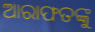
ଆରାଫତଙ୍କୁ